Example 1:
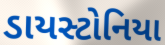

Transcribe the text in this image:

ડાયસ્ટોનિયા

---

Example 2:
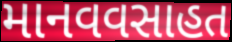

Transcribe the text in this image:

માનવવસાહત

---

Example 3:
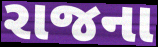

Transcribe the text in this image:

રાજના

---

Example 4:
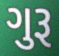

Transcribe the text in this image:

ગુરૂ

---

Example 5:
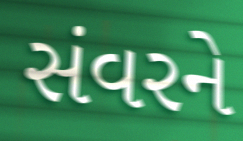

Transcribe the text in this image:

સંવરને